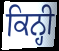
ਕਿਨ੍ਹੀ